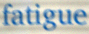
fatigue